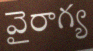
వైరాగ్య